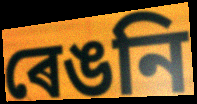
ৰেঙনি